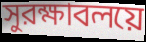
সুরক্ষাবলয়ে